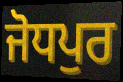
ਜੋਧਪੁਰ